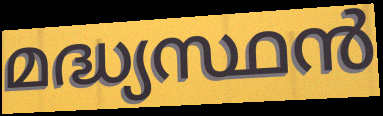
മദ്ധ്യസ്ഥൻ